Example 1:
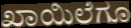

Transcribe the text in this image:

ಖಾಯಿಲೆಗೂ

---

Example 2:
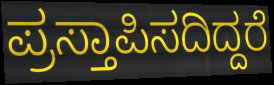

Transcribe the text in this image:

ಪ್ರಸ್ತಾಪಿಸದಿದ್ದರೆ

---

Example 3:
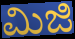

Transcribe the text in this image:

ಮಿಜಿ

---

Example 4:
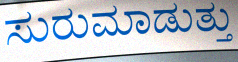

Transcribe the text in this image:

ಸುರುಮಾಡುತ್ತು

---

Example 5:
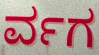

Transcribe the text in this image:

ರ್ವಗ